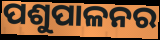
ପଶୁପାଳନର